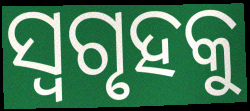
ସ୍ୱଗୃହକୁ